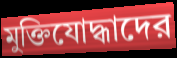
মুক্তিযোদ্ধাদের